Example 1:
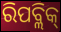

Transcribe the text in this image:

ରିପବ୍ଲିକ୍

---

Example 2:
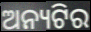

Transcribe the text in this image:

ଅନ୍ୟଟିର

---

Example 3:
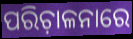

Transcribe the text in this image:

ପରିଚ଼ାଳନାରେ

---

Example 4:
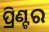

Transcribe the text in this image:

ପ୍ରିଣ୍ଟର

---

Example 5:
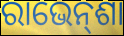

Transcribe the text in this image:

ରାଭେନ୍‌ଶା